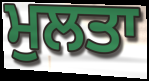
ਮੁਲਤਾ